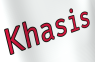
Khasis